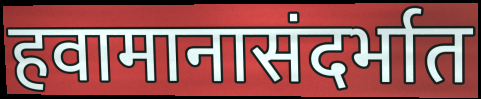
हवामानासंदर्भात